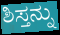
ಶಿಸ್ತನ್ನು